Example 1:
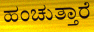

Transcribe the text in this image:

ಹಂಚುತ್ತಾರೆ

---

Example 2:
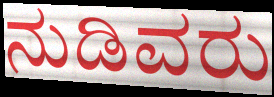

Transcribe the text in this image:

ನುಡಿವರು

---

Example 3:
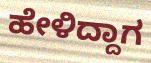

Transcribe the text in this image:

ಹೇಳಿದ್ದಾಗ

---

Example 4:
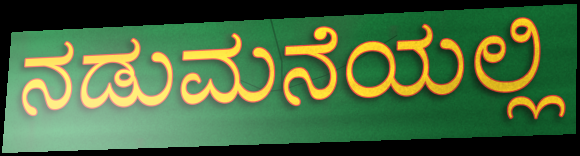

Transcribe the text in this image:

ನಡುಮನೆಯಲ್ಲಿ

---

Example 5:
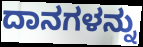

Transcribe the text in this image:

ದಾನಗಳನ್ನು